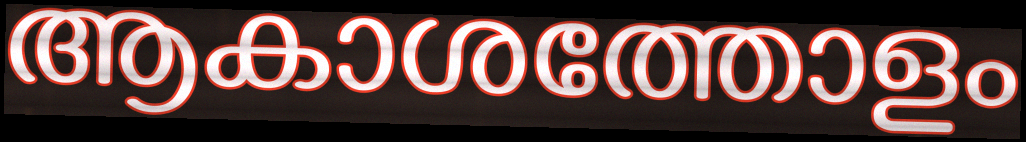
ആകാശത്തോളം